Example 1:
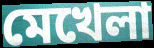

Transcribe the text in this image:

মেখেলা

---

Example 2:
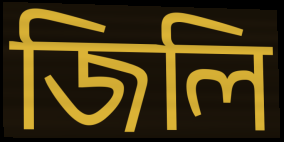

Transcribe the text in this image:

জিলি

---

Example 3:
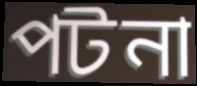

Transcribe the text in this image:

পটনা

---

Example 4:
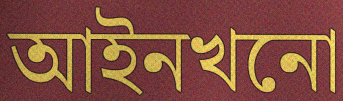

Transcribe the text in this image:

আইনখনো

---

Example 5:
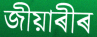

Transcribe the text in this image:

জীয়াৰীৰ